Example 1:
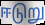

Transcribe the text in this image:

ஈடுறு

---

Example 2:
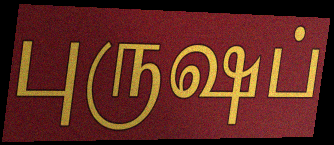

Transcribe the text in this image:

புருஷப்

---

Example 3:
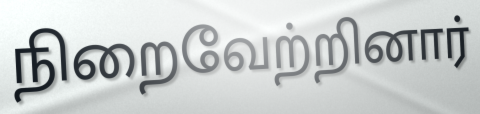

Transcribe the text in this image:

நிறைவேற்றினார்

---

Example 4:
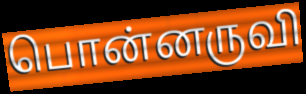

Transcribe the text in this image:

பொன்னருவி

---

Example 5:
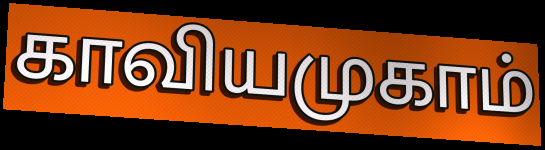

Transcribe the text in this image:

காவியமுகாம்